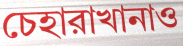
চেহারাখানাও